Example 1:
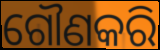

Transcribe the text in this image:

ଗୌଣକରି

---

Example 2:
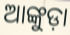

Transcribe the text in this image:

ଆଙ୍କୁଡ଼ା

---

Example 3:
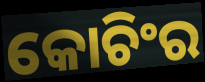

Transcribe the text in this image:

କୋଚିଂର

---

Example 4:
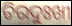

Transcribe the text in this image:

ଚିରଦୁଃଖୀ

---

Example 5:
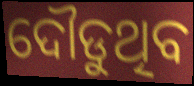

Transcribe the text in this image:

ଦୌଡୁଥିବ